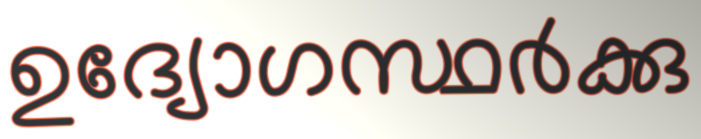
ഉദ്യോഗസ്ഥർക്കു